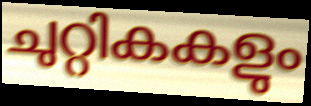
ചുറ്റികകളും